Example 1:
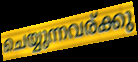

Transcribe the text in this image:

ചെയ്യുന്നവര്ക്കു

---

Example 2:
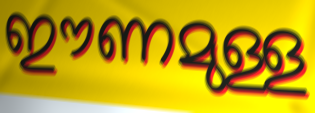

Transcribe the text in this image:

ഈണമുള്ള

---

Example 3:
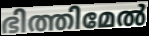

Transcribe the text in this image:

ഭിത്തിമേൽ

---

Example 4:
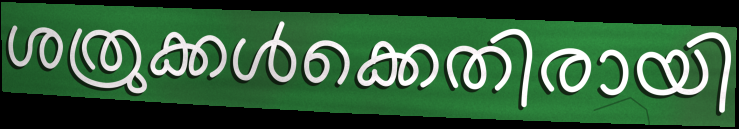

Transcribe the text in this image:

ശത്രുക്കൾക്കെതിരായി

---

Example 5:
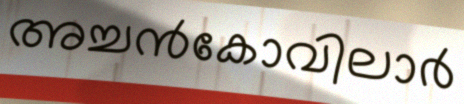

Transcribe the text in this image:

അച്ചൻകോവിലാർ